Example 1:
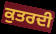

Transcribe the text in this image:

ਕੁਤਰਦੀ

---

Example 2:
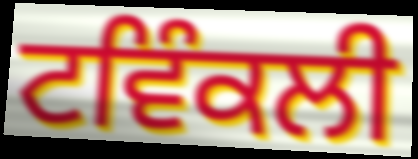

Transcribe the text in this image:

ਟਵਿੰਕਲੀ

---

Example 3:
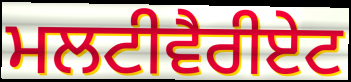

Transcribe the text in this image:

ਮਲਟੀਵੈਰੀਏਟ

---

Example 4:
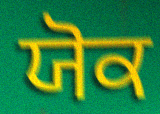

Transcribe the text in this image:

ਯੋਕ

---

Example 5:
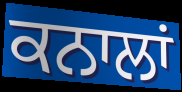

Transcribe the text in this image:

ਕਨਾਲਾਂ